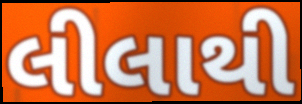
લીલાથી